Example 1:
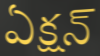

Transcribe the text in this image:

ఏక్షన్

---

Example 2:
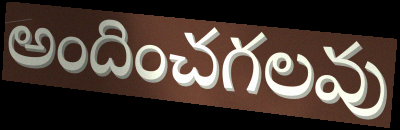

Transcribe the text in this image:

అందించగలవు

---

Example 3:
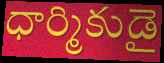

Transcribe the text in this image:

ధార్మికుడై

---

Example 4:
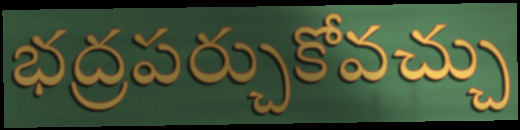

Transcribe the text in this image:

భద్రపర్చుకోవచ్చు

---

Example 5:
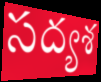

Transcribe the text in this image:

సద్యశ